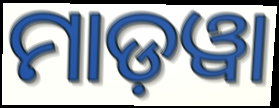
ମାଡ଼ୱା